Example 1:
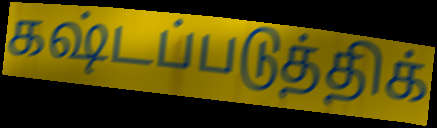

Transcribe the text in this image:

கஷ்டப்படுத்திக்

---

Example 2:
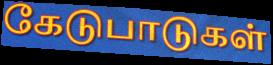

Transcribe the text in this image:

கேடுபாடுகள்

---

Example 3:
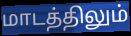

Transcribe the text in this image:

மாடத்திலும்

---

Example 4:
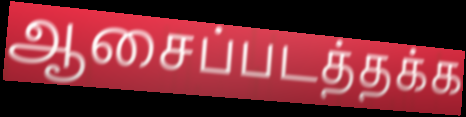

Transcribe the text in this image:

ஆசைப்படத்தக்க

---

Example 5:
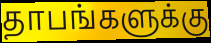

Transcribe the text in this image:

தாபங்களுக்கு